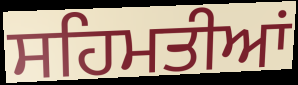
ਸਹਿਮਤੀਆਂ